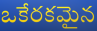
ఒకేరకమైన